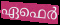
ഏഫെർ